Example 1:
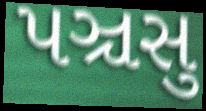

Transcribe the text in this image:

પઞ્ચસુ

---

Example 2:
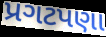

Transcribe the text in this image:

પ્રગટપણા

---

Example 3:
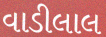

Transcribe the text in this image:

વાડીલાલ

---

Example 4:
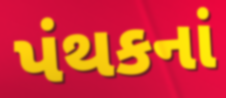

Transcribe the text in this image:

પંથકનાં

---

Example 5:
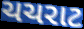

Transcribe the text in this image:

ચચરાટ